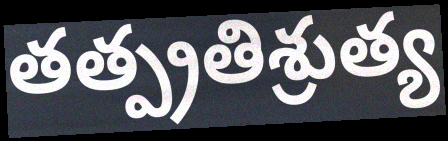
తత్ప్రతిశ్రుత్య